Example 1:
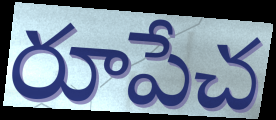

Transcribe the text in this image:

రూపేచ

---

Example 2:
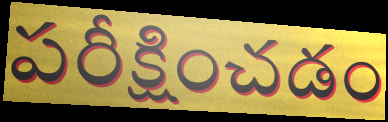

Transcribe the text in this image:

పరీక్షించడం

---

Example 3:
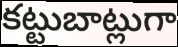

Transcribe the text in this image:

కట్టుబాట్లుగా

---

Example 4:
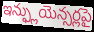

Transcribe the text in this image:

ఇన్ఫ్లుయెన్సర్లపై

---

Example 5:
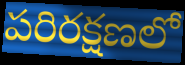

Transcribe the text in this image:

పరిరక్షణలో